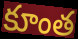
కూంత